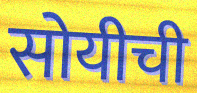
सोयीची